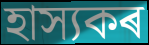
হাস্যকৰ